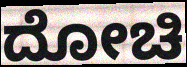
ದೋಚಿ